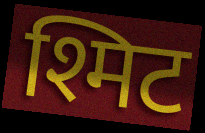
श्मिट